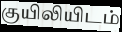
குயிலியிடம்